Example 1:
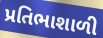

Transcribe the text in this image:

પ્રતિભાશાળી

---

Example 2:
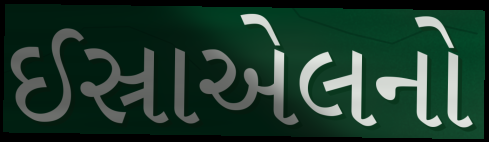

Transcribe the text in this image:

ઈસ્રાએલનો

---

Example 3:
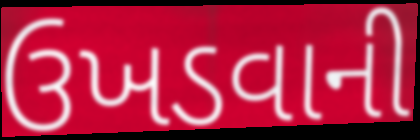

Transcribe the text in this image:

ઉખડવાની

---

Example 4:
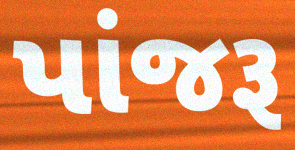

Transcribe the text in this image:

પાંજરૂ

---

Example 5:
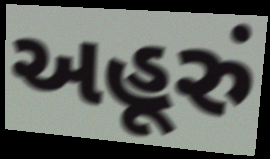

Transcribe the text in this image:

અહૂરું